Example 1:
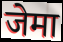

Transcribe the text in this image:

जेमा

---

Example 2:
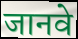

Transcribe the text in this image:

जानवे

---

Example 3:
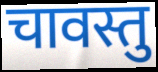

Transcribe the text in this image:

चावस्तु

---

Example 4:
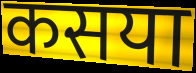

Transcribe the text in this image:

कसया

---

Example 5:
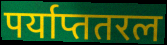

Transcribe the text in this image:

पर्याप्ततरल